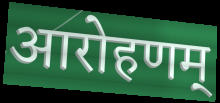
आरोहणम्